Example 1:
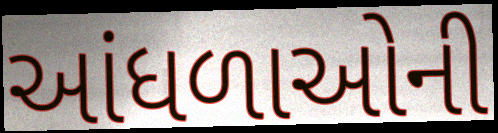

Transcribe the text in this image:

આંધળાઓની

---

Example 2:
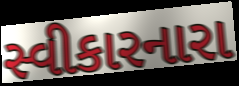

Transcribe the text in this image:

સ્વીકારનારા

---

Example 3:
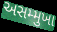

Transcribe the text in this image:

અસમ્મુખા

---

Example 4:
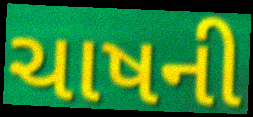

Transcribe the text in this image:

ચાષની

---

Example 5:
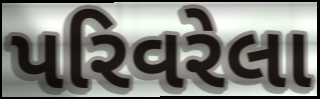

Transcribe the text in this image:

પરિવરેલા